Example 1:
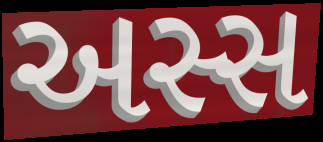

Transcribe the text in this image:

અસ્સ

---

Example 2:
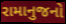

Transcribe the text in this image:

રામાનુજનો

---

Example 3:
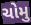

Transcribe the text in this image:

ચોમુ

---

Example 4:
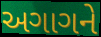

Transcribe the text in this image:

અગાગને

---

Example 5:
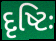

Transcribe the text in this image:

દૃષ્ટિઃ